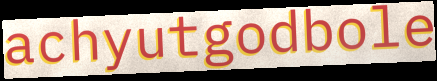
achyutgodbole